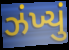
ઝંખ્યું